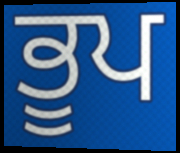
ਭੂਪ